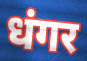
धंगर